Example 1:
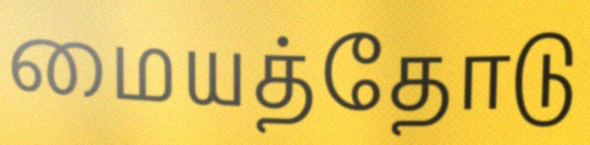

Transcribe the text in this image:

மையத்தோடு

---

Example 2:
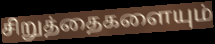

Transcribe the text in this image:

சிறுத்தைகளையும்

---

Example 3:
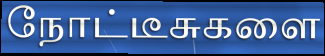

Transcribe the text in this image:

நோட்டீசுகளை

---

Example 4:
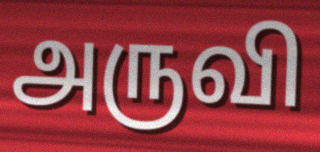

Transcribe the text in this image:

அருவி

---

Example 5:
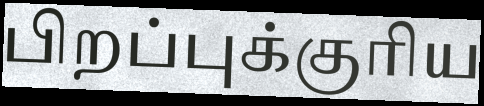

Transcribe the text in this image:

பிறப்புக்குரிய